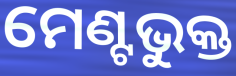
ମେଣ୍ଟଭୁକ୍ତ